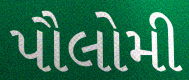
પૌલોમી